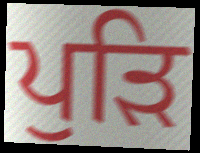
ਪੁੜਿ